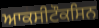
ਆਕਸੀਟੌਕਸਿਨ